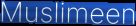
Muslimeen